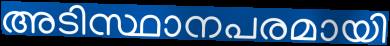
അടിസ്ഥാനപരമായി